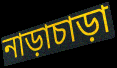
নাড়াচাড়া